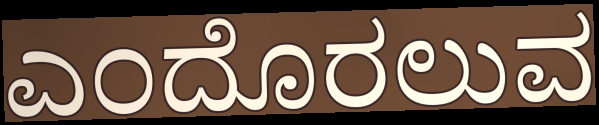
ಎಂದೊರಲುವ